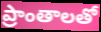
ప్రాంతాలతో